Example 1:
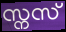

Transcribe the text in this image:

സ്നസ്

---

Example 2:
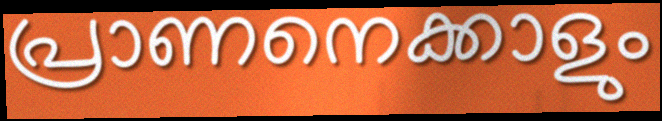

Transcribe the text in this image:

പ്രാണനെക്കാളും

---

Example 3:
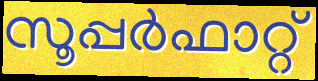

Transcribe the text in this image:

സൂപ്പർഫാറ്റ്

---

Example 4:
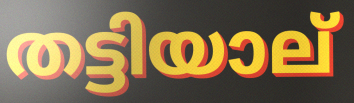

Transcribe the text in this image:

തട്ടിയാല്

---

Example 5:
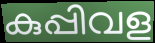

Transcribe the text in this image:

കുപ്പിവള